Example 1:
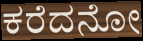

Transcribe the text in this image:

ಕರೆದನೋ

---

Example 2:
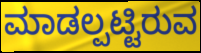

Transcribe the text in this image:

ಮಾಡಲ್ಪಟ್ಟಿರುವ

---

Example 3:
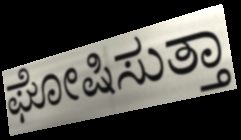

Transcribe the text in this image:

ಘೋಷಿಸುತ್ತಾ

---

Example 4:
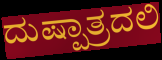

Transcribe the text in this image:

ದುಷ್ಪಾತ್ರದಲಿ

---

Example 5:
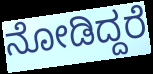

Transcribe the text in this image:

ನೋಡಿದ್ದರೆ